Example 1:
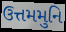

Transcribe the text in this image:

ઉત્તમમુનિ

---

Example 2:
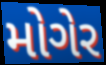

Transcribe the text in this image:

મોગેર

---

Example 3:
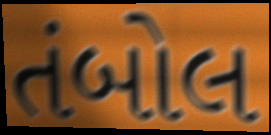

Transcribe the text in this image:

તંબોલ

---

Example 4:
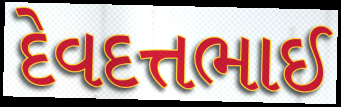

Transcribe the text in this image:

દેવદત્તભાઈ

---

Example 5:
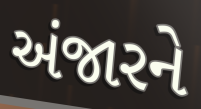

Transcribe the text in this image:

અંજારને